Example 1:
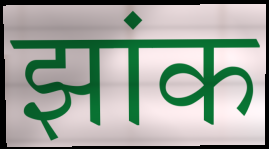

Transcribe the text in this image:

झांक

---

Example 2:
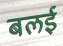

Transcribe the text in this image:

बलई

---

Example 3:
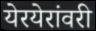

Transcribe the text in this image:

येरयेरांवरी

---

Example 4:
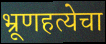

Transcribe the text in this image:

भ्रूणहत्येचा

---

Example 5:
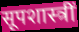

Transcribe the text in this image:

सूपशास्त्रीं